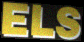
ELS